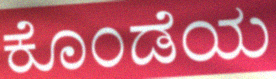
ಕೊಂಡೆಯ